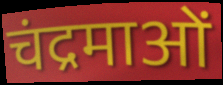
चंद्रमाओं